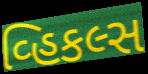
વ્હિકલ્સ